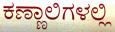
ಕಣ್ಣಾಲಿಗಳಲ್ಲಿ